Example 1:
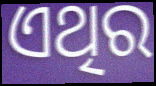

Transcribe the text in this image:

ଏଥିର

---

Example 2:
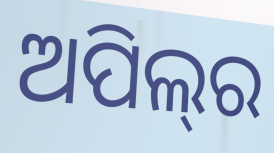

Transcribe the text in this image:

ଅପିଲ୍‌ର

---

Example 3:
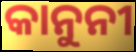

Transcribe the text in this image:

କାନୁନୀ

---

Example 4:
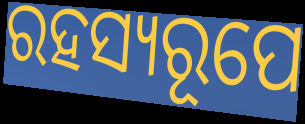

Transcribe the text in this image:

ରହସ୍ୟରୂପେ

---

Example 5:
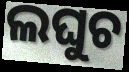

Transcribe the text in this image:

ଲଘୁଚ